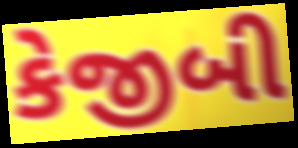
કેજીબી